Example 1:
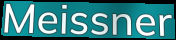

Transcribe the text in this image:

Meissner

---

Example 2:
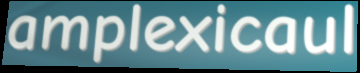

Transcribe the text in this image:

amplexicaul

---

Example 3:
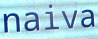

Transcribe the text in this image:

naiva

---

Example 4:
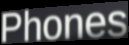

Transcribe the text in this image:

Phones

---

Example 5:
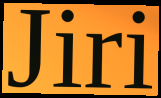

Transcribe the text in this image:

Jiri